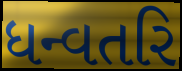
ધન્વતરિ